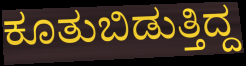
ಕೂತುಬಿಡುತ್ತಿದ್ದ